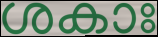
ശകാഃ